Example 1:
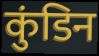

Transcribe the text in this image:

कुंडिन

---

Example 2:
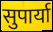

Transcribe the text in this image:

सुपार्या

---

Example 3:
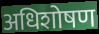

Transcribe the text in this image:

अधिशोषण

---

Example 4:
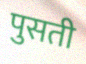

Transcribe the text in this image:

पुसती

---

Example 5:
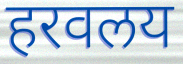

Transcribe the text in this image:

हरवलय